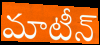
మాటీన్